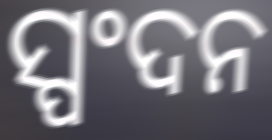
ସ୍ପଂଦନ